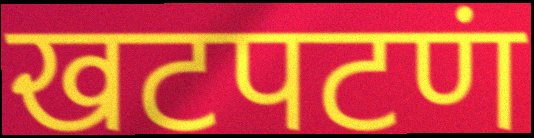
खटपटणं